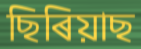
ছিৰিয়াছ